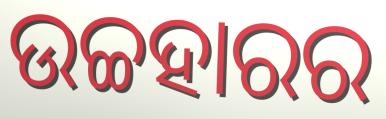
ଉଚ୍ଚହାରର